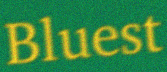
Bluest